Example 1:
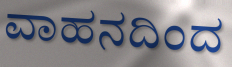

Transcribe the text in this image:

ವಾಹನದಿಂದ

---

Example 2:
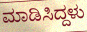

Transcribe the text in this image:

ಮಾಡಿಸಿದ್ದಳು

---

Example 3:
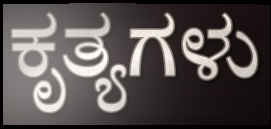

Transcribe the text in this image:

ಕೃತ್ಯಗಳು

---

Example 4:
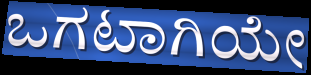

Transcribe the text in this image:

ಒಗಟಾಗಿಯೇ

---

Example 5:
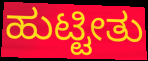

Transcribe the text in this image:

ಹುಟ್ಟೀತು